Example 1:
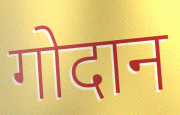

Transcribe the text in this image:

गोदान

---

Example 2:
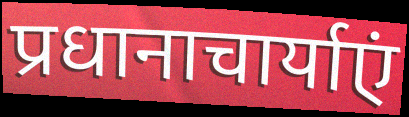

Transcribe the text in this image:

प्रधानाचार्याएं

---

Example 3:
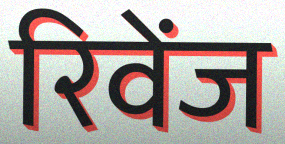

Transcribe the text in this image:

रिवेंज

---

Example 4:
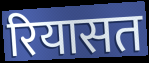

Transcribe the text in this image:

रियासत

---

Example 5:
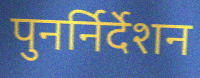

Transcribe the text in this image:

पुनर्निर्देशन